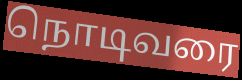
நொடிவரை